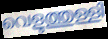
വെളുത്തുള്ളി